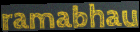
ramabhau